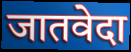
जातवेदा